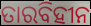
ତାରବିହୀନ